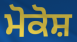
ਮੋਕੋਸ਼